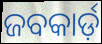
ଜବକାର୍ଡ଼